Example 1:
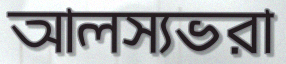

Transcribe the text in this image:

আলস্যভরা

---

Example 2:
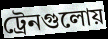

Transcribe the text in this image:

ট্রেনগুলোয়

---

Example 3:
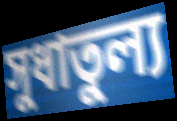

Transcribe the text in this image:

সুধাতুল্য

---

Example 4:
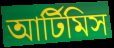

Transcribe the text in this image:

আর্টিমিস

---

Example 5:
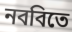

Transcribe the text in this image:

নববিতে